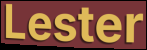
Lester